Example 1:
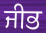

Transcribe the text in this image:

ਜੀਭ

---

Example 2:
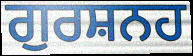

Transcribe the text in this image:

ਗੁਰਸ਼ਨਹ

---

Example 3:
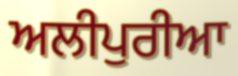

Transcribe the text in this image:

ਅਲੀਪੁਰੀਆ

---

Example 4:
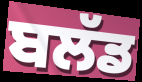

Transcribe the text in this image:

ਬਲੱਡ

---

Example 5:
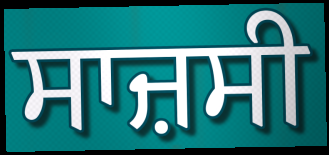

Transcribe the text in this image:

ਸਾਜ਼ਸੀ